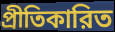
প্রীতিকারিত